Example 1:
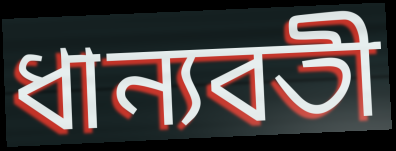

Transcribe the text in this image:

ধান্যবতী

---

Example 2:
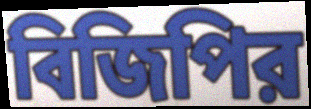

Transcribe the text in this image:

বিজিপির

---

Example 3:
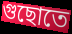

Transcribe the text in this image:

গুছোতে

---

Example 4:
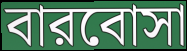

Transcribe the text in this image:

বারবোসা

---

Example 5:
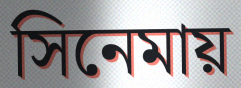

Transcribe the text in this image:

সিনেমায়